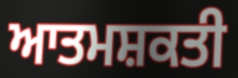
ਆਤਮਸ਼ਕਤੀ